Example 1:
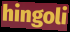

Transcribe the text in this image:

hingoli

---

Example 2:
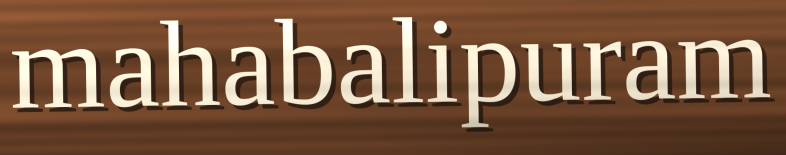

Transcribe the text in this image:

mahabalipuram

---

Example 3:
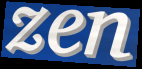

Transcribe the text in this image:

zen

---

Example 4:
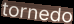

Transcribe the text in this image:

tornedo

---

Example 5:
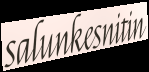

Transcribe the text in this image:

salunkesnitin